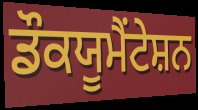
ਡੌਕਯੂਮੈਂਟੇਸ਼ਨ